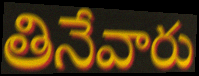
తినేవారు